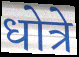
धोत्रे